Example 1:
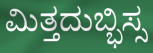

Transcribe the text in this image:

ಮಿತ್ತದುಬ್ಭಿಸ್ಸ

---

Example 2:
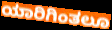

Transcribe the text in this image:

ಯಾರಿಗಿಂತಲೂ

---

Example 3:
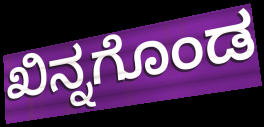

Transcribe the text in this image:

ಖಿನ್ನಗೊಂಡ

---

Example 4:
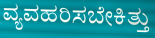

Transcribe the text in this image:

ವ್ಯವಹರಿಸಬೇಕಿತ್ತು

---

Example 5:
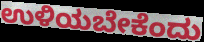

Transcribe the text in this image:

ಉಳಿಯಬೇಕೆಂದು